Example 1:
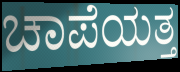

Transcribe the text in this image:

ಚಾಪೆಯತ್ತ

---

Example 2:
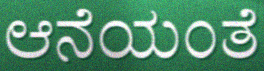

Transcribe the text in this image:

ಆನೆಯಂತೆ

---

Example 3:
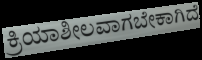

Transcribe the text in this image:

ಕ್ರಿಯಾಶೀಲವಾಗಬೇಕಾಗಿದೆ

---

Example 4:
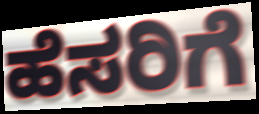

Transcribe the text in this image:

ಹೆಸರಿಗೆ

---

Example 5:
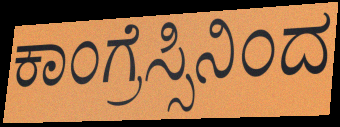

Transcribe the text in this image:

ಕಾಂಗ್ರೆಸ್ಸಿನಿಂದ